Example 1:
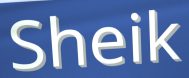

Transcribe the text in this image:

Sheik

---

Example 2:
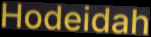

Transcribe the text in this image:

Hodeidah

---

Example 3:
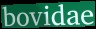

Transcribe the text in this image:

bovidae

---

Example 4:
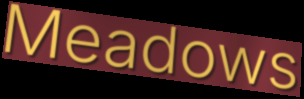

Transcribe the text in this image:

Meadows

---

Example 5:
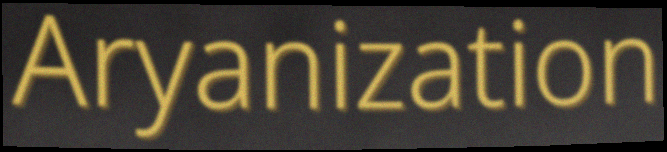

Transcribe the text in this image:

Aryanization